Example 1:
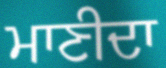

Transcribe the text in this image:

ਮਾਣੀਦਾ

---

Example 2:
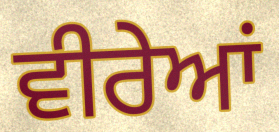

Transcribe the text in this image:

ਵੀਰੇਆਂ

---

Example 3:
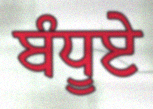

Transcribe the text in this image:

ਬੰਧੂਏ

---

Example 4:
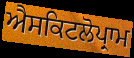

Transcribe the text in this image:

ਐਸਕਿਟਲੋਪ੍ਰਾਮ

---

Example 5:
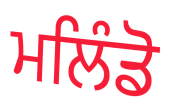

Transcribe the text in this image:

ਮਲਿੰਡੋ